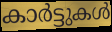
കാർട്ടുകൾ